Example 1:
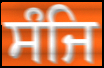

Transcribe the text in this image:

ਸੰਜਿ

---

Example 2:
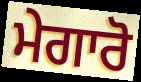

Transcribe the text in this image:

ਮੇਗਾਰੋ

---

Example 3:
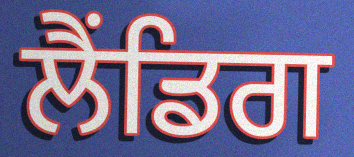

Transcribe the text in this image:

ਲੈਂਡਿਗ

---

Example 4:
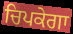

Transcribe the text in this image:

ਚਿਪਕੇਗਾ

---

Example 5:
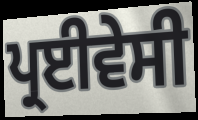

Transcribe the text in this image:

ਪ੍ਰਈਵੇਸੀ